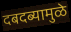
दबदब्यामुळे